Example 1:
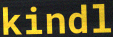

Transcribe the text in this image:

kindl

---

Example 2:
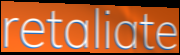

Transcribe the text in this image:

retaliate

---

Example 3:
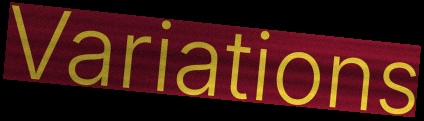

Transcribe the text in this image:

Variations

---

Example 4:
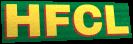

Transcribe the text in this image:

HFCL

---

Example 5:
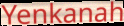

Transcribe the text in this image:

Yenkanah